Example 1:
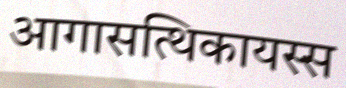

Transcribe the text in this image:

आगासत्थिकायस्स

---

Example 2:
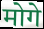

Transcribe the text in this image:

मोगे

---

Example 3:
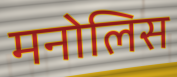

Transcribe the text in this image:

मनोलिस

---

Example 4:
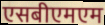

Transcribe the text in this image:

एसबीएमएम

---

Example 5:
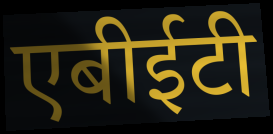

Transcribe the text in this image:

एबीईटी